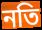
নতি